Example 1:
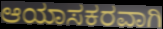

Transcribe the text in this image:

ಆಯಾಸಕರವಾಗಿ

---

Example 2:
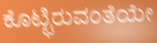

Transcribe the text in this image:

ಕೊಟ್ಟಿರುವಂತೆಯೇ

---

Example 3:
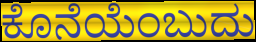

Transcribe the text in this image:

ಕೊನೆಯೆಂಬುದು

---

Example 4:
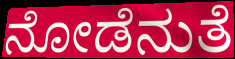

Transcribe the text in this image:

ನೋಡೆನುತೆ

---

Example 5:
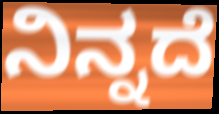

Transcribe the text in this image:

ನಿನ್ನದೆ